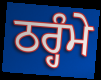
ਠਰ੍ਹੰਮੇ